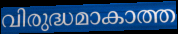
വിരുദ്ധമാകാത്ത